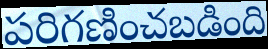
పరిగణించబడింది